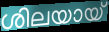
ശിലയായ്